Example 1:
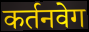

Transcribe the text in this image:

कर्तनवेग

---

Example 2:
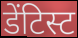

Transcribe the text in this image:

डेंटिस्ट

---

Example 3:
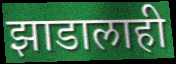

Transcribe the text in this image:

झाडालाही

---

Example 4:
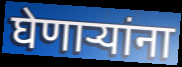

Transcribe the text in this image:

घेणाऱ्यांना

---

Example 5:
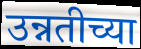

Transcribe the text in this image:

उन्नतीच्या